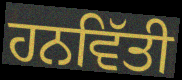
ਹਨਵਿੱਤੀ